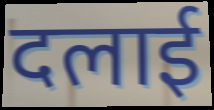
दलाई